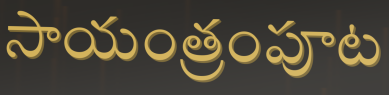
సాయంత్రంపూట